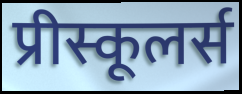
प्रीस्कूलर्स